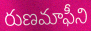
రుణమాఫీని